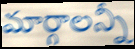
మార్గాలన్నీ